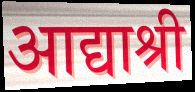
आद्याश्री